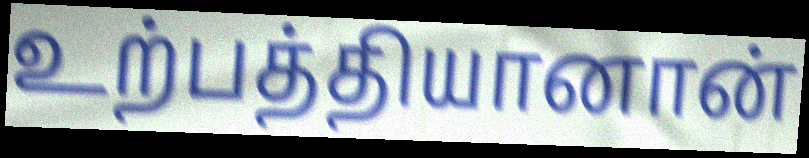
உற்பத்தியானான்